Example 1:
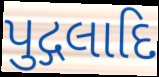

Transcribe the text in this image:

પુદ્ગલાદિ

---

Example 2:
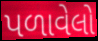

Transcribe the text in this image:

પળાવેલો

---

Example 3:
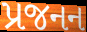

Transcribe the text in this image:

પ્રજનન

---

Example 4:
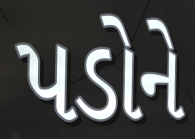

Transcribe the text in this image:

પડોને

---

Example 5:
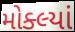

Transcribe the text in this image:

મોક્લ્યાં